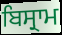
ਬਿਸ੍ਰਾਮ